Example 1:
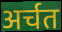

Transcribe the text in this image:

अर्चत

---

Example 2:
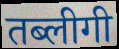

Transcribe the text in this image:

तब्लीगी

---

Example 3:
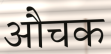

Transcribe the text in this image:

औचक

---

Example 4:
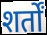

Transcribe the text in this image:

शर्तों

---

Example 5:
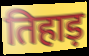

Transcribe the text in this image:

तिहाड़